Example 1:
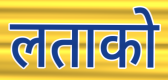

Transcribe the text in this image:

लताको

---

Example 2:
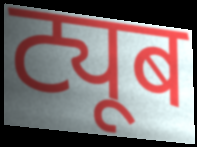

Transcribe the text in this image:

ट्यूब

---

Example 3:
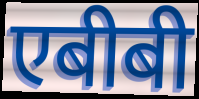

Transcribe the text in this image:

एबीबी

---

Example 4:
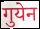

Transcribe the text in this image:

गुयेन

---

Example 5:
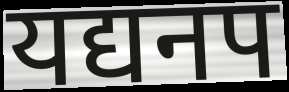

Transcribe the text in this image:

यद्यनप